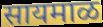
सायमाळ